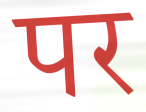
पर